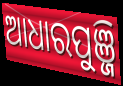
ଆଧାରପୁଞ୍ଜି